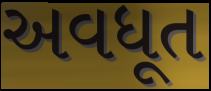
અવધૂત